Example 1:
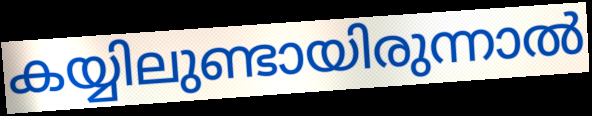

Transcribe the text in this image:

കയ്യിലുണ്ടായിരുന്നാൽ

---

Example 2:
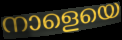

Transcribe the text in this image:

നാളെയെ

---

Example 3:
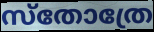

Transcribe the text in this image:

സ്തോത്രേ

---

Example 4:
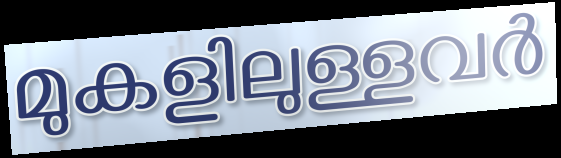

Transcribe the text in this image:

മുകളിലുള്ളവർ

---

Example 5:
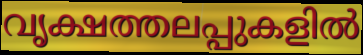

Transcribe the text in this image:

വൃക്ഷത്തലപ്പുകളിൽ